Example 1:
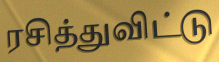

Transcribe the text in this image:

ரசித்துவிட்டு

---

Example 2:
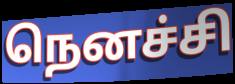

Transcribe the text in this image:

நெனச்சி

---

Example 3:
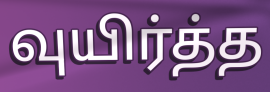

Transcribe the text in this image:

வுயிர்த்த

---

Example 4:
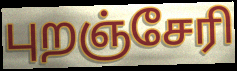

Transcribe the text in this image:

புறஞ்சேரி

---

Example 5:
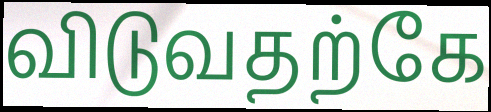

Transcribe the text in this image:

விடுவதற்கே